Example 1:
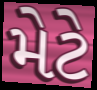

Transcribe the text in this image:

મેટે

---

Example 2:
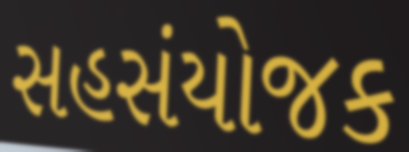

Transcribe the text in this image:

સહસંયોજક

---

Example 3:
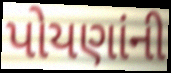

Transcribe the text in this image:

પોયણાંની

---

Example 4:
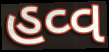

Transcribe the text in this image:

હવ્વ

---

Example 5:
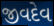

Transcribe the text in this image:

જીવદેવ